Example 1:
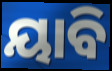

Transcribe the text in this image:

ୟାବି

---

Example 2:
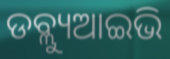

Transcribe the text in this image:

ଡବ୍ଲ୍ୟୁଆଇଭି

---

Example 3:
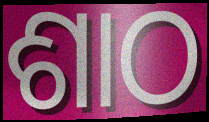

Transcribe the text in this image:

ଶାଠ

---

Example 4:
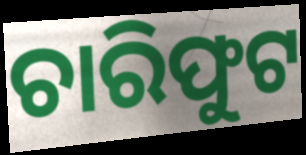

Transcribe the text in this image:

ଚାରିଫୁଟ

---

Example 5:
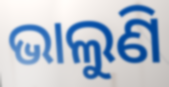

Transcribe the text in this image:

ଭାଲୁଣି